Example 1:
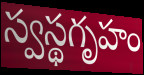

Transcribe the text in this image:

స్వస్థగృహం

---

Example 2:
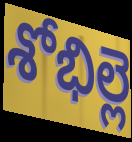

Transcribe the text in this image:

శోభిల్లె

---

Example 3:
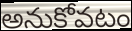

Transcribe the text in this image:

అనుకోవటం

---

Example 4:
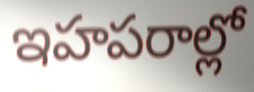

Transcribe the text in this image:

ఇహపరాల్లో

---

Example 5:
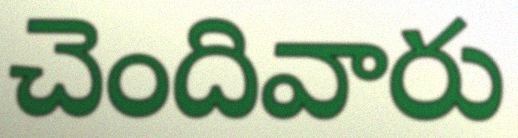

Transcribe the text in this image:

చెందివారు